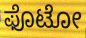
ಫೊಟೋ